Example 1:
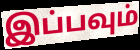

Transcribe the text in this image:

இப்பவும்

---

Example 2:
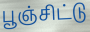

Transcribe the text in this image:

பூஞ்சிட்டு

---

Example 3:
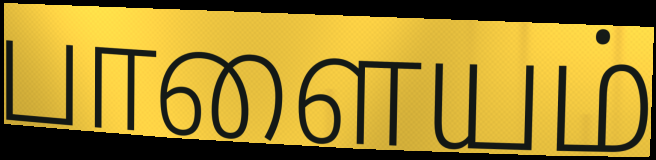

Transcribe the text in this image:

பாளையம்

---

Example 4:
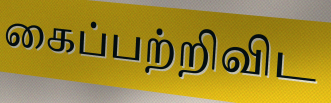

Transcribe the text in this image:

கைப்பற்றிவிட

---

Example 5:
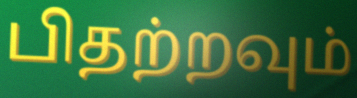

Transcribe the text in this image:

பிதற்றவும்